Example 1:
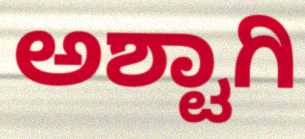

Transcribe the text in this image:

ಅಶ್ಟಾಗಿ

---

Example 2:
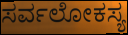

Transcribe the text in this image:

ಸರ್ವಲೋಕಸ್ಯ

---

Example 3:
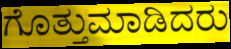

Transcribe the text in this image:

ಗೊತ್ತುಮಾಡಿದರು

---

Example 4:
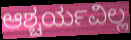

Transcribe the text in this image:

ಆಶ್ಚರ್ಯವಿಲ್ಲ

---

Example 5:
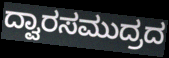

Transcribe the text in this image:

ದ್ವಾರಸಮುದ್ರದ